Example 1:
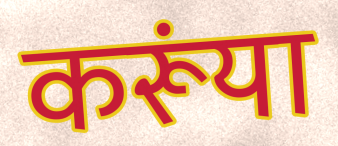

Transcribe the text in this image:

करूंया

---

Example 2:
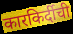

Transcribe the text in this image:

कारकिर्दीची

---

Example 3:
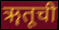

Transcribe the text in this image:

ॠतूची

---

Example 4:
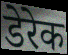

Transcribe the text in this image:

डेरेक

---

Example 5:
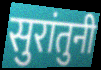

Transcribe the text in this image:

सुरांतुनी